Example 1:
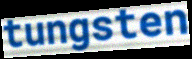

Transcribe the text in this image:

tungsten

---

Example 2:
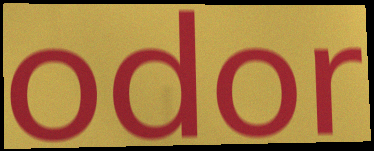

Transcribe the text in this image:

odor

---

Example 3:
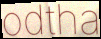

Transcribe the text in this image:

odtha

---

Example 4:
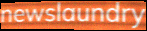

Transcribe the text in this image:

newslaundry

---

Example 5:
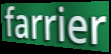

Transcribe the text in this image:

farrier